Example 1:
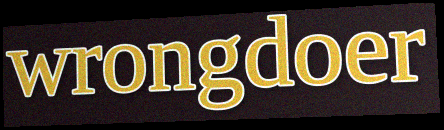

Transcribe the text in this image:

wrongdoer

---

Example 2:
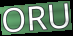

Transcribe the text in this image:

ORU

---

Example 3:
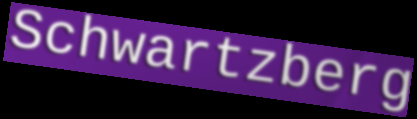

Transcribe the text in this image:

Schwartzberg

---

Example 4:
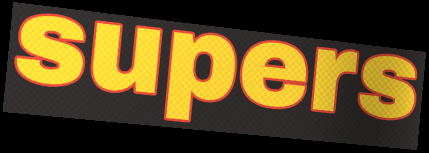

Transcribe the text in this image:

supers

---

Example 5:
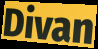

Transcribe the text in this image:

Divan